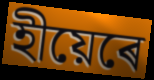
হীয়েৰে